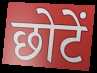
छोटें